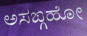
ಅಸಙ್ಗಹೋ